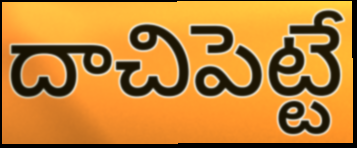
దాచిపెట్టే